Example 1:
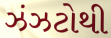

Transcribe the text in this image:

ઝંઝટોથી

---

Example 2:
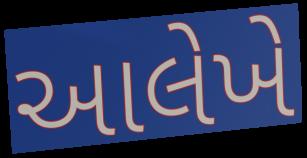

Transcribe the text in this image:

આલેખે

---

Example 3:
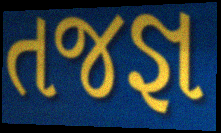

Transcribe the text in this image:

તજજ્ઞ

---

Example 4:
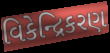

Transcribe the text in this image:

વિકેન્દ્રિકરણ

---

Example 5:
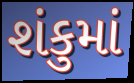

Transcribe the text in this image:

શંકુમાં